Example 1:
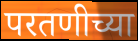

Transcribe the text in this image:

परतणीच्या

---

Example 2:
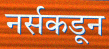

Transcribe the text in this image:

नर्सकडून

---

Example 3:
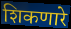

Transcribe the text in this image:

शिकणारे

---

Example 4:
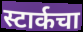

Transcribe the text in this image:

स्टार्कचा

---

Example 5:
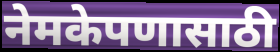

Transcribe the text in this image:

नेमकेपणासाठी